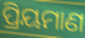
ପ୍ରିୟମାଣ